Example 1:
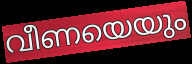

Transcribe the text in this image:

വീണയെയും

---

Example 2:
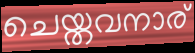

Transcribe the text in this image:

ചെയ്തവനാര്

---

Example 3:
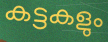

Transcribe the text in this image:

കട്ടകളും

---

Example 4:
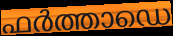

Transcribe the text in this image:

ഫർത്താഡെ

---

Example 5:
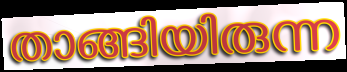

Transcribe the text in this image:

താങ്ങിയിരുന്ന